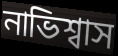
নাভিশ্বাস